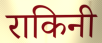
राकिनी